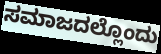
ಸಮಾಜದಲ್ಲೊಂದು